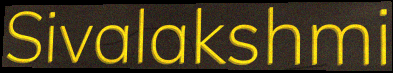
Sivalakshmi